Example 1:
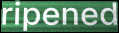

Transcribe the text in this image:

ripened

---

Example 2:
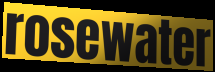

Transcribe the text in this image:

rosewater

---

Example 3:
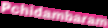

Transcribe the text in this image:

Pchidambaram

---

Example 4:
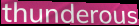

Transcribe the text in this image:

thunderous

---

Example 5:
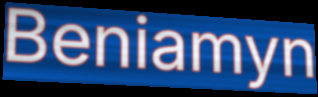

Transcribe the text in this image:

Beniamyn